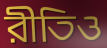
রীতিও